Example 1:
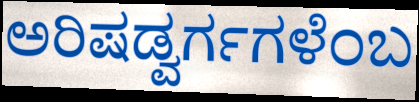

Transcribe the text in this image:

ಅರಿಷಡ್ವರ್ಗಗಳೆಂಬ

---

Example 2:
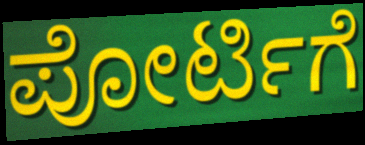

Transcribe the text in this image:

ಪೋರ್ಟಿಗೆ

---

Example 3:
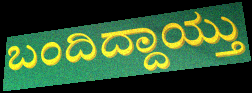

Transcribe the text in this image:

ಬಂದಿದ್ದಾಯ್ತು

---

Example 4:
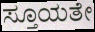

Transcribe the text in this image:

ಸ್ತೂಯತೇ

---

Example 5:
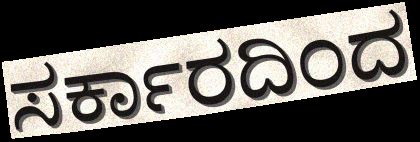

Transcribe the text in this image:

ಸರ್ಕಾರದಿಂದ